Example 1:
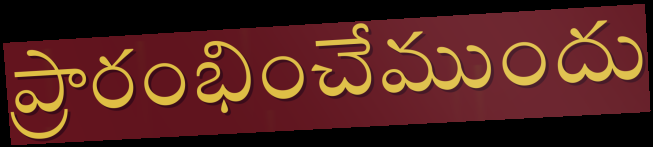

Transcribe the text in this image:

ప్రారంభించేముందు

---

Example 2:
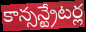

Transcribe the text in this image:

కాన్సన్ట్రేటర్ల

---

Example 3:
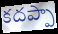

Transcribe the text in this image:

కదప్పా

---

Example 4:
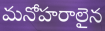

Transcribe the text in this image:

మనోహరాలైన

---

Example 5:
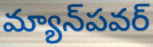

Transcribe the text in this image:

మ్యాన్‌పవర్